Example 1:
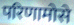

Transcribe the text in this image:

परिणामोसे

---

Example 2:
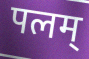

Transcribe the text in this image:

पलम्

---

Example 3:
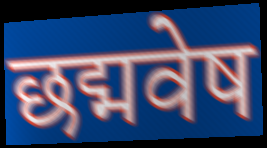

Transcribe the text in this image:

छद्मवेष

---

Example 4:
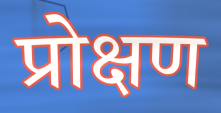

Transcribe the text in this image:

प्रोक्षण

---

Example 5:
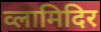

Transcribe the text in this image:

व्लामिदिर